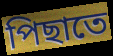
পিছাতে